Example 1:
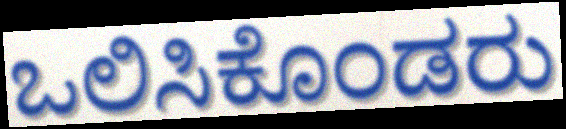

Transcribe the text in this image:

ಒಲಿಸಿಕೊಂಡರು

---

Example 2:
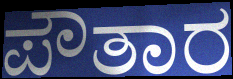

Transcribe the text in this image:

ಪೌತಾರ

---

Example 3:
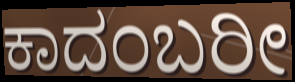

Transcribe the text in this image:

ಕಾದಂಬರೀ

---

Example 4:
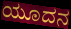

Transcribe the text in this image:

ಯೂದನ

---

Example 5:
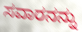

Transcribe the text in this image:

ಸವಾರನನ್ನು